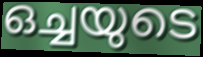
ഒച്ചയുടെ